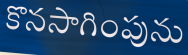
కొనసాగింపును